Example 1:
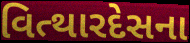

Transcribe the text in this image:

વિત્થારદેસના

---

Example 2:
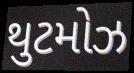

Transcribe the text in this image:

થુટમોઝ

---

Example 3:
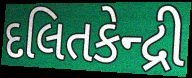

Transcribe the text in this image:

દલિતકેન્દ્રી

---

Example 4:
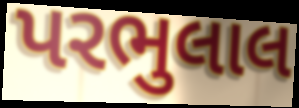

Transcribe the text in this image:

પરભુલાલ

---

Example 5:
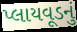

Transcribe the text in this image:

પ્લાયવૂડનું